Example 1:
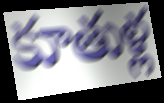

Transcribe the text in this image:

కూతుళ్ల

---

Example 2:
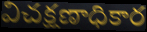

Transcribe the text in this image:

విచక్షణాధికార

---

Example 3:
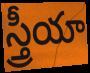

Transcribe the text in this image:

స్త్రీయా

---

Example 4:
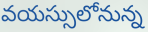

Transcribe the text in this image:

వయస్సులోనున్న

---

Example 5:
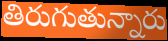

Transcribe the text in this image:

తిరుగుతున్నారు